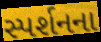
સ્પર્શનના